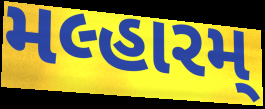
મલ્હારમ્